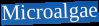
Microalgae